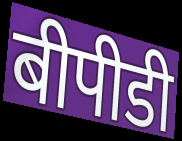
बीपीडी